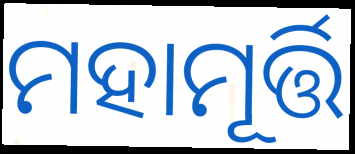
ମହାମୂର୍ତ୍ତି